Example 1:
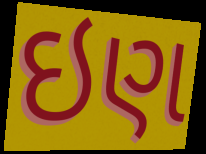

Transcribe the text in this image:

ઇણ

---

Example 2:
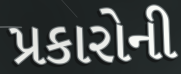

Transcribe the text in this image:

પ્રકારોની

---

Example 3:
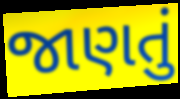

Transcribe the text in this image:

જાણતું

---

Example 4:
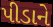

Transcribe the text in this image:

પીડાને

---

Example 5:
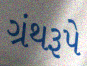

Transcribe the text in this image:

ગ્રંથરૂપે